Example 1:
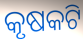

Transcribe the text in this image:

କୃଷକଟି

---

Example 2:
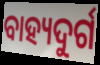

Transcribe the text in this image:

ବାହ୍ୟଦୁର୍ଗ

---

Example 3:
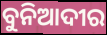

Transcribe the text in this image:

ବୁନିଆଦୀର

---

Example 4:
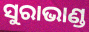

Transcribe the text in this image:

ସୁରାଭାଣ୍ଡ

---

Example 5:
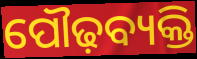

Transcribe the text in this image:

ପୌଢ଼ବ୍ୟକ୍ତି